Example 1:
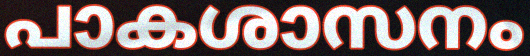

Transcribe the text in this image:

പാകശാസനം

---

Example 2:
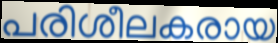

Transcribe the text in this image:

പരിശീലകരായ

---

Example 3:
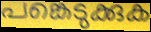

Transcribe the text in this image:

പങ്കെടുക്കുക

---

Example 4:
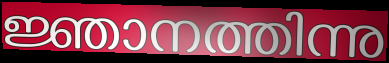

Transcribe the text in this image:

ജ്ഞാനത്തിന്നു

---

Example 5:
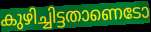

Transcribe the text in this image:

കുഴിച്ചിട്ടതാണെടോ